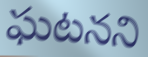
ఘటనని